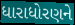
ધારાધોરણને